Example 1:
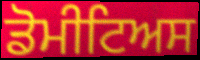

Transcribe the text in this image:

ਡੋਮੀਟਿਅਸ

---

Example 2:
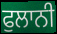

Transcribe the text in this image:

ਫੁਲਾਨੀ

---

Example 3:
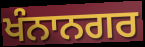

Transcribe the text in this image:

ਖੰਨਾਨਗਰ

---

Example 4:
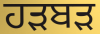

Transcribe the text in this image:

ਹੜਬੜ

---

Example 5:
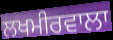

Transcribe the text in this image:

ਲਖਮੀਰਵਾਲਾ